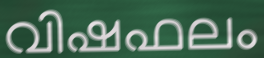
വിഷഫലം